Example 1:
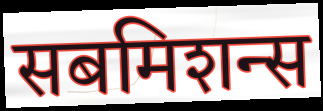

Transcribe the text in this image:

सबमिशन्स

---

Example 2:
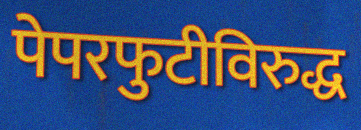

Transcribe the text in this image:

पेपरफुटीविरुद्ध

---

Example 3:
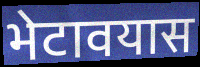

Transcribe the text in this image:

भेटावयास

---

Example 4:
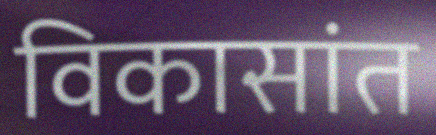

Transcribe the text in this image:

विकासांत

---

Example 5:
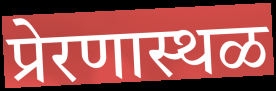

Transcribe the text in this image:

प्रेरणास्थळ